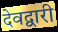
देवद्वारी